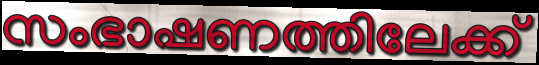
സംഭാഷണത്തിലേക്ക്